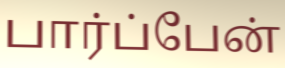
பார்ப்பேன்